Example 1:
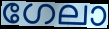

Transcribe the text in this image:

ഗേലാ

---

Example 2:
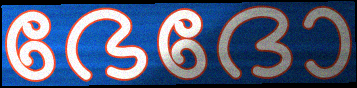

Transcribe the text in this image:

ഭേദോ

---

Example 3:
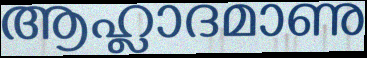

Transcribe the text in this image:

ആഹ്ലാദമാണു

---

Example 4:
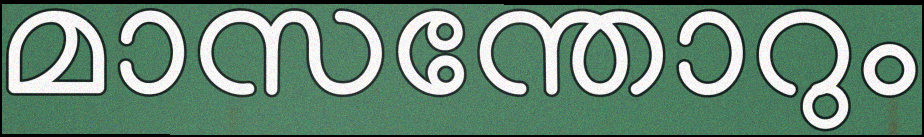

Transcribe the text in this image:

മാസന്തോറും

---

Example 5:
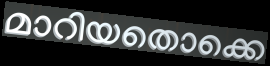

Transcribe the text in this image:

മാറിയതൊക്കെ